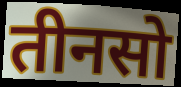
तीनसो